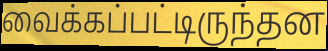
வைக்கப்பட்டிருந்தன